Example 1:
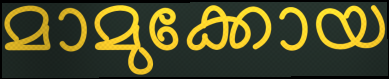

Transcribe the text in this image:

മാമുക്കോയ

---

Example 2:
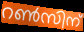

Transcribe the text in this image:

റൺസിന്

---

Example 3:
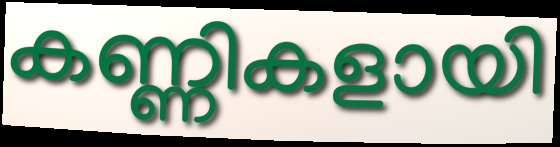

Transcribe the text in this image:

കണ്ണികളായി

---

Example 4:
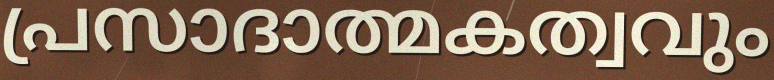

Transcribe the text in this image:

പ്രസാദാത്മകത്വവും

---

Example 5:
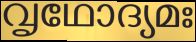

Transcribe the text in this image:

വൃഥോദ്യമഃ